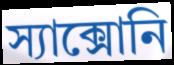
স্যাক্সোনি